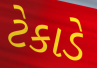
ટેકાડે